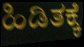
ಹಿಡಿತಕ್ಕೆ